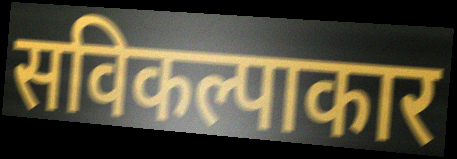
सविकल्पाकार